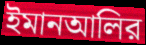
ইমানআলির